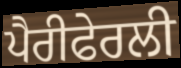
ਪੈਰੀਫੇਰਲੀ